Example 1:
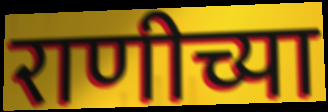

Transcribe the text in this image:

राणीच्या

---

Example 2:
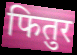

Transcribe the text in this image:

फितुर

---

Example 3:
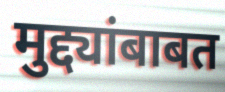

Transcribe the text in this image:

मुद्द्यांबाबत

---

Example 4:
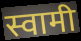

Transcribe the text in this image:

स्वामी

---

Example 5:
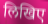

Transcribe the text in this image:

लिखिए